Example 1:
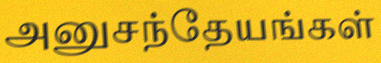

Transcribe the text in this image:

அனுசந்தேயங்கள்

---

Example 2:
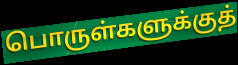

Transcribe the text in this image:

பொருள்களுக்குத்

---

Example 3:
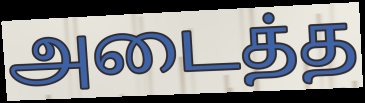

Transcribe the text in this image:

அடைத்த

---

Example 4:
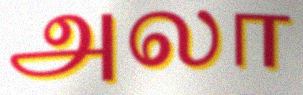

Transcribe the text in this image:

அலா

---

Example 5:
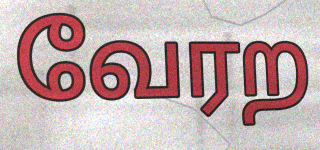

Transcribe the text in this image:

வேரற